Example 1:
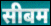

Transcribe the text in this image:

सीबम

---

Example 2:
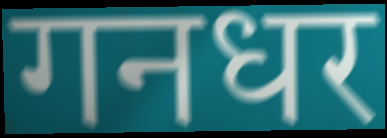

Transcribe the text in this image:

गनधर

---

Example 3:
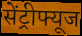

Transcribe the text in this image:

सेंट्रीफ्यूज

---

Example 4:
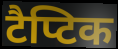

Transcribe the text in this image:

टैप्टिक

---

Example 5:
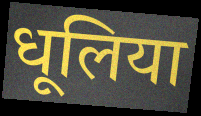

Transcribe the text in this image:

धूलिया